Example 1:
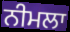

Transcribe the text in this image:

ਨੀਮਲਾ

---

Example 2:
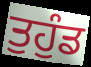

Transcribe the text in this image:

ਤੁਹੁੰਡ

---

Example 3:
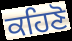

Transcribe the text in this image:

ਕਹਿਣੋ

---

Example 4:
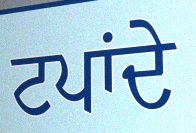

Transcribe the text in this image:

ਟਪਾਂਦੇ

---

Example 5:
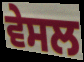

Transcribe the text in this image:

ਵੇਸਲ